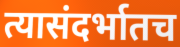
त्यासंदर्भातच